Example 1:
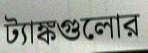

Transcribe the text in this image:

ট্যাঙ্কগুলোর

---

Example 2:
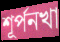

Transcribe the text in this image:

শূর্পনখা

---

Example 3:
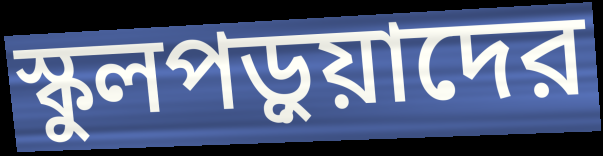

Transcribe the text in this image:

স্কুলপড়ুয়াদের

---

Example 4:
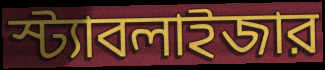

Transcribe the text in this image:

স্ট্যাবলাইজার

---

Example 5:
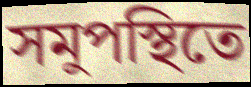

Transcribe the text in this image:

সমুপস্থিতে